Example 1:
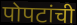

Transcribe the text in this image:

पोपटांची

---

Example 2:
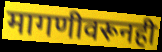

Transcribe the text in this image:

मागणीवरूनही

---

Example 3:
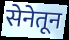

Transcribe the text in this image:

सेनेतून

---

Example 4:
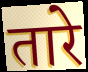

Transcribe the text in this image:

तारे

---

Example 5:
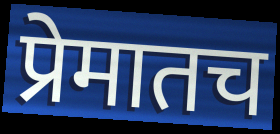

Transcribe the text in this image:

प्रेमातच